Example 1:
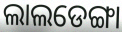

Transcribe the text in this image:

ଲାଲଡେଙ୍ଗା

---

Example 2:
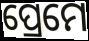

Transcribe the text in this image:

ପ୍ରେମେ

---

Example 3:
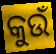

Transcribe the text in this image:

କୁଉଁ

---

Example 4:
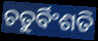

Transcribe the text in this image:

ଚତୁର୍ବିଂଶତି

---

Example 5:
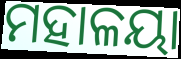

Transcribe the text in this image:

ମହାଳୟା